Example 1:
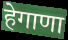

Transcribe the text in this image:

हेगाणा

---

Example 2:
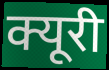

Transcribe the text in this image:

क्यूरी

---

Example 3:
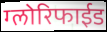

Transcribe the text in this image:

ग्लोरिफाईड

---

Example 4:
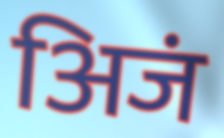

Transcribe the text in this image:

अिजं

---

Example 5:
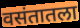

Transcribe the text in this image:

वसंतातला